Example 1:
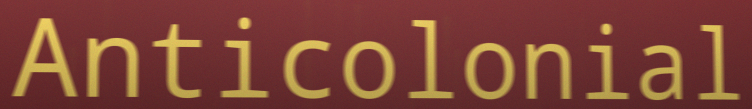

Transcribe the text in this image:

Anticolonial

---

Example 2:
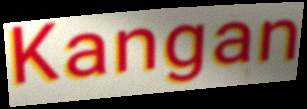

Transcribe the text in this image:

Kangan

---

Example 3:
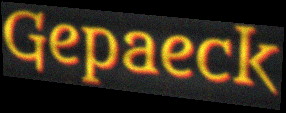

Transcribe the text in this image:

Gepaeck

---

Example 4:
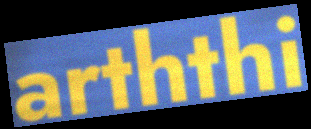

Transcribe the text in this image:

arththi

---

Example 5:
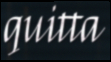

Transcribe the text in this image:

quitta